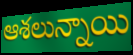
ఆశలున్నాయి